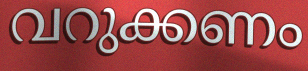
വറുക്കണം